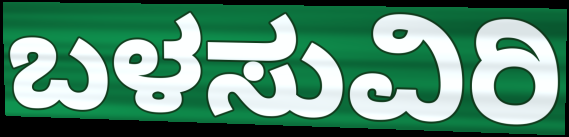
ಬಳಸುವಿರಿ